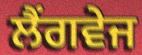
ਲੈਂਗਵੇਜ